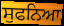
ਸੁਫਨਿਆ